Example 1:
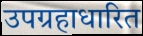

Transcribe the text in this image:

उपग्रहाधारित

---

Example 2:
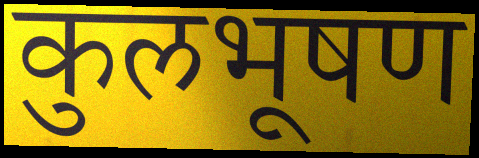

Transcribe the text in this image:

कुलभूषण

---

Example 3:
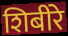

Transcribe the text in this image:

शिबीरे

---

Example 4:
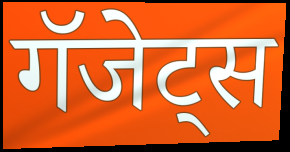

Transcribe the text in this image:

गॅजेट्स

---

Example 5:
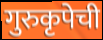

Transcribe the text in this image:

गुरुकृपेची